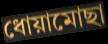
ধোয়ামোছা